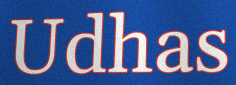
Udhas